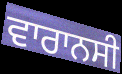
ਵਾਰਾਨਸੀ